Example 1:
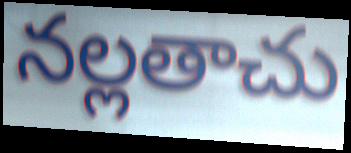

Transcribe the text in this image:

నల్లతాచు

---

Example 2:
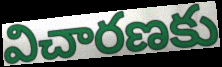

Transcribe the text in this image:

విచారణకు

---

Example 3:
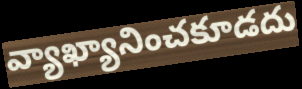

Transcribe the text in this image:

వ్యాఖ్యానించకూడదు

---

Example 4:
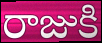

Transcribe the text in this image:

రాజుకి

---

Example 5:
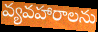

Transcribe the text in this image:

వ్యవహారాలను